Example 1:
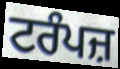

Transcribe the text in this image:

ਟਰੰਪਜ਼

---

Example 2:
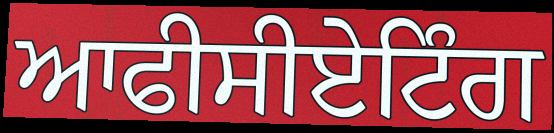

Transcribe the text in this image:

ਆਫੀਸੀਏਟਿੰਗ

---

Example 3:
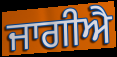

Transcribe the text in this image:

ਜਾਗੀਐ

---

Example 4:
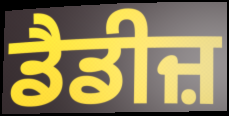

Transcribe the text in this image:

ਡੈਡੀਜ਼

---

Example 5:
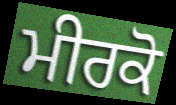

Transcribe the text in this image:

ਮੀਰਕੋ